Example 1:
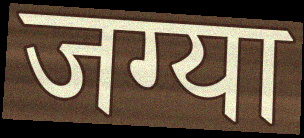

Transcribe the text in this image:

जग्या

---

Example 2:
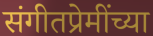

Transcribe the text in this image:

संगीतप्रेमींच्या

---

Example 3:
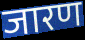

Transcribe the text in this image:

जारण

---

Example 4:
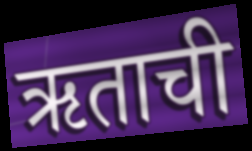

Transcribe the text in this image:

ऋताची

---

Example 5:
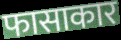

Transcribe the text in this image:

फासाकार